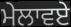
ਮੇਲਾਵਏ